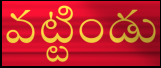
వట్టిండు